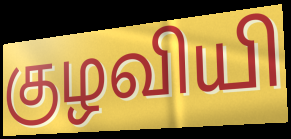
குழவியி